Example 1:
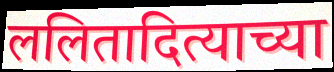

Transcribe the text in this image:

ललितादित्याच्या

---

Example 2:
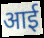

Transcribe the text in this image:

आई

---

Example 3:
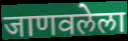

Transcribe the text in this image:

जाणवलेला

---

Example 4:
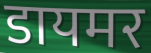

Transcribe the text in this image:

डायमर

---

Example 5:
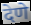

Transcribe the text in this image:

देणे